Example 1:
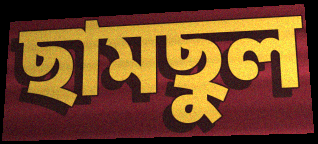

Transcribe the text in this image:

ছামছুল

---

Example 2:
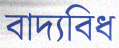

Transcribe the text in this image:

বাদ্যবিধ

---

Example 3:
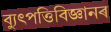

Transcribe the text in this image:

ব্যুৎপত্তিবিজ্ঞানৰ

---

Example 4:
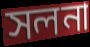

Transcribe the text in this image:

সলনা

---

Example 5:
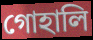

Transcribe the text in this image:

গোহালি